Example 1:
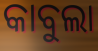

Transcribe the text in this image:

କାବୁଲା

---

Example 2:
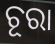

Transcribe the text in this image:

ଚୂରା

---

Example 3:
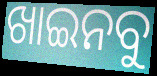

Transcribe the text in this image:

ଖାଇନବୁ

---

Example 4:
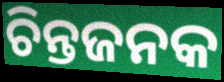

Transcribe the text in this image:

ଚିନ୍ତଜନକ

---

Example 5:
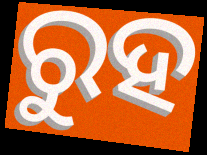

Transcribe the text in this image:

ରୁହ